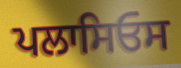
ਪਲਾਸਿਓਸ